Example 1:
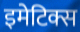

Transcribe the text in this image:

इमेटिक्स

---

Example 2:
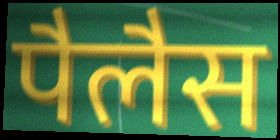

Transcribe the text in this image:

पैलैस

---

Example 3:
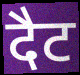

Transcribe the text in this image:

दैट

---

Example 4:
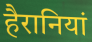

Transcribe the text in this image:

हैरानियां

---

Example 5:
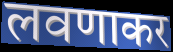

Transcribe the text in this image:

लवणाकर